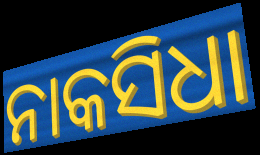
ନାକସିଧା